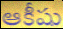
ఆకీషు